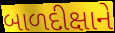
બાળદીક્ષાને